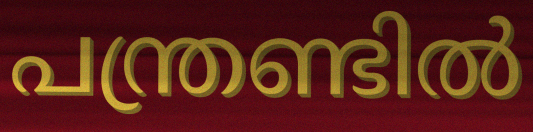
പന്ത്രണ്ടിൽ